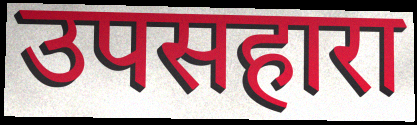
उपसहारा